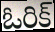
ఓరిక్